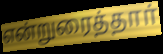
என்றுரைத்தார்